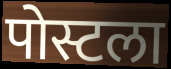
पोस्टला